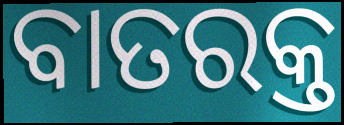
ବାତରକ୍ତ